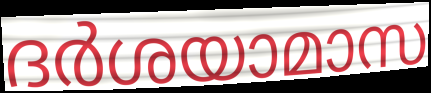
ദർശയാമാസ